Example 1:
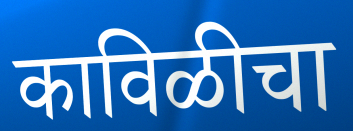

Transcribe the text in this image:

काविळीचा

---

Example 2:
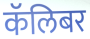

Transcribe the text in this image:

कॅलिबर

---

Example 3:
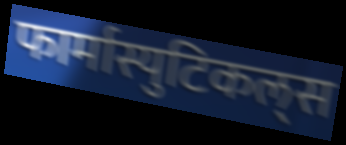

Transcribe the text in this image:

फार्मास्युटिकल्स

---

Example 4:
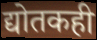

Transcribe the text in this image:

द्योतकही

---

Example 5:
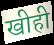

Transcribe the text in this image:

खीही